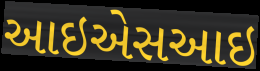
આઇએસઆઇ